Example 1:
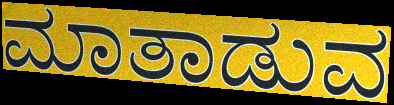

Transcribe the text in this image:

ಮಾತಾಡುವ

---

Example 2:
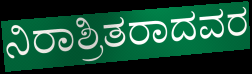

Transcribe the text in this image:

ನಿರಾಶ್ರಿತರಾದವರ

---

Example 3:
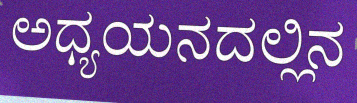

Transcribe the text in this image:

ಅಧ್ಯಯನದಲ್ಲಿನ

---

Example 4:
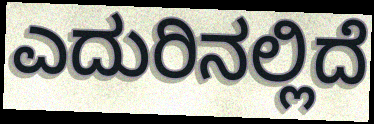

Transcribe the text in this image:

ಎದುರಿನಲ್ಲಿದೆ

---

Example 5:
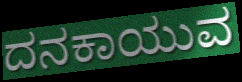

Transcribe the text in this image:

ದನಕಾಯುವ